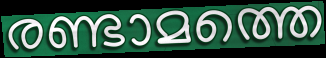
രണ്ടാമത്തെ